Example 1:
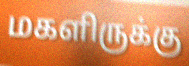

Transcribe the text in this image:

மகளிருக்கு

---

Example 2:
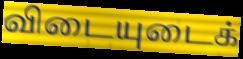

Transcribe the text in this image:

விடையுடைக்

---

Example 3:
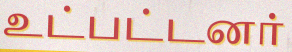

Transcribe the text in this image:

உட்பட்டனர்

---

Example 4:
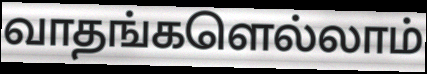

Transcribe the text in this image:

வாதங்களெல்லாம்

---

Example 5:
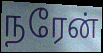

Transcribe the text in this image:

நரேன்